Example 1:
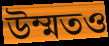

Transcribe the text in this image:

উম্মতও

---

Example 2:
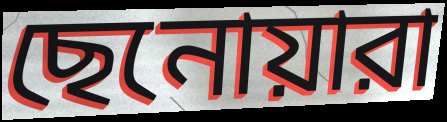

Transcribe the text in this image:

ছেনোয়ারা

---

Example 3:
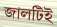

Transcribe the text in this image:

জালটিই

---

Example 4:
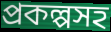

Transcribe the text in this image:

প্রকল্পসহ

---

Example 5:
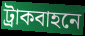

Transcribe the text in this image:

ট্রাকবাহনে